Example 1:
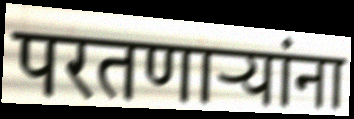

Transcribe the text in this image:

परतणाऱ्यांना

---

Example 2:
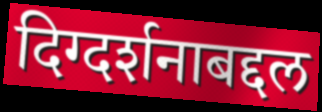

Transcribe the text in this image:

दिग्दर्शनाबद्दल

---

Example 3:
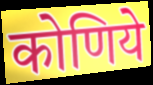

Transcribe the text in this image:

कोणिये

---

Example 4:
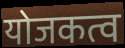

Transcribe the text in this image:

योजकत्व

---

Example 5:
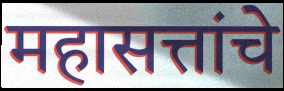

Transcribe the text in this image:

महासत्तांचे